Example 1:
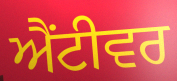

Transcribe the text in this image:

ਐਂਟੀਵਰ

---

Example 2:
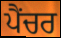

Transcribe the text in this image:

ਪੈਂਚਰ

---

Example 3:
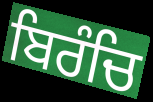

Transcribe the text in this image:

ਬਿਰੰਚਿ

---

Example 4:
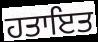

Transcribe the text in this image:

ਹਤਾਇਤ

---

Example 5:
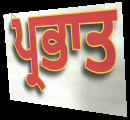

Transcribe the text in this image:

ਪ੍ਰਭਾਤ